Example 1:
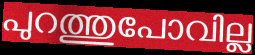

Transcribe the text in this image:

പുറത്തുപോവില്ല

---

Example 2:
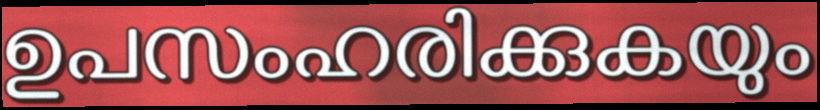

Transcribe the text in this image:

ഉപസംഹരിക്കുകയും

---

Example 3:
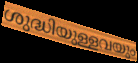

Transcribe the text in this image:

ശുദ്ധിയുള്ളവയും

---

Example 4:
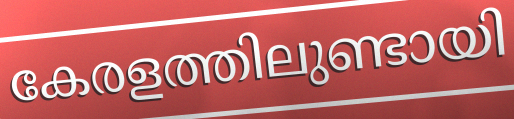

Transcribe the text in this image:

കേരളത്തിലുണ്ടായി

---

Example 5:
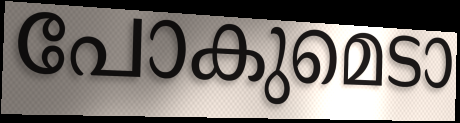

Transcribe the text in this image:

പോകുമെടാ